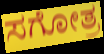
ಸಗೋತ್ರ